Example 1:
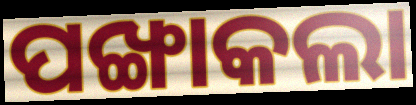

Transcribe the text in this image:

ପଙ୍ଖାକଲା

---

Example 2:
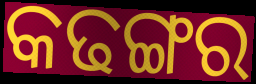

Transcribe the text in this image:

କଢଙ୍ଗର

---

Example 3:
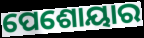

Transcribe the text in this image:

ପେଶୋୟାର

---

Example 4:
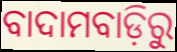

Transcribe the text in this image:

ବାଦାମବାଡ଼ିରୁ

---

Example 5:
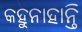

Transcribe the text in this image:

କହୁନାହାନ୍ତି